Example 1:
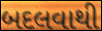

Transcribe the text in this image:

બદલવાથી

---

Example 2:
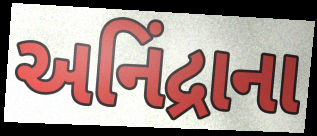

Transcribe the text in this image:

અનિંદ્રાના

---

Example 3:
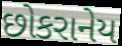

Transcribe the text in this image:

છોકરાનેય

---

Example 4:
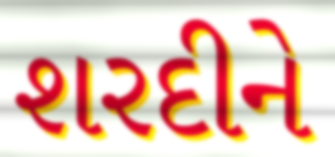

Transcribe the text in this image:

શરદીને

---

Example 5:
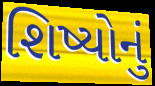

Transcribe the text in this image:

શિષ્યોનું